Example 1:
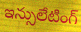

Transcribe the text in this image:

ఇన్సులేటింగ్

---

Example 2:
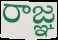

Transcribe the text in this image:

రాజ్ఞ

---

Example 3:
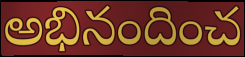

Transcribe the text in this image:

అభినందించ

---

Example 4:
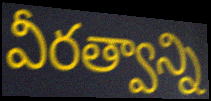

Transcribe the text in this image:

వీరత్వాన్ని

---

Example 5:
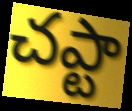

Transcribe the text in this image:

చఎ్టా